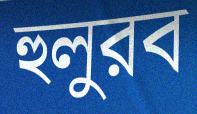
হুলুরব